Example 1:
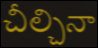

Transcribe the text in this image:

చీల్చినా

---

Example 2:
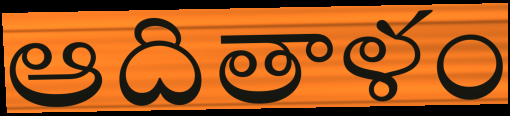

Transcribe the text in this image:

ఆదితాళం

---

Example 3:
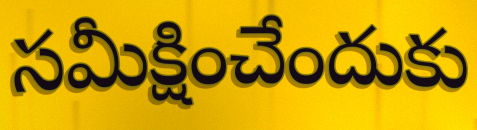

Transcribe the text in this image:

సమీక్షించేందుకు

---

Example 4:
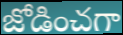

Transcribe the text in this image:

జోడించగా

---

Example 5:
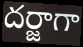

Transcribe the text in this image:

దర్జాగా